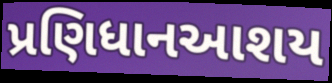
પ્રણિધાનઆશય